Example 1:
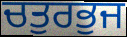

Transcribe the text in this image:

ਚਤੁਰਭੁਜ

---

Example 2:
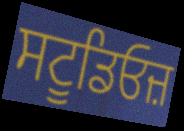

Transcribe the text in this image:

ਸਟੂਡਿਓਜ਼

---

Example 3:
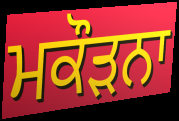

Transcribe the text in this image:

ਮਕੌੜਨਾ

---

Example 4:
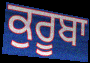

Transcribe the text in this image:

ਕੁਰੂਬਾ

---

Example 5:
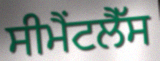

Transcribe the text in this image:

ਸੀਮੈਂਟਲੈੱਸ